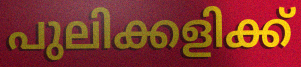
പുലിക്കളിക്ക്